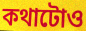
কথাটোও